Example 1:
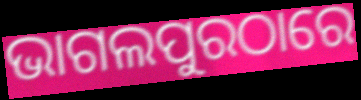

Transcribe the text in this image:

ଭାଗଲପୁରଠାରେ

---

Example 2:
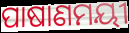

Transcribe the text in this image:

ପାଷାଣମୟୀ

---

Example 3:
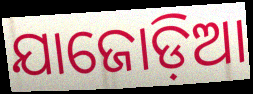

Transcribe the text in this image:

ଯାଜୋଡ଼ିଆ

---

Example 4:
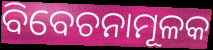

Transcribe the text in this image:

ବିବେଚନାମୂଳକ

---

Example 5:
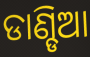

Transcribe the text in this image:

ଡାଣ୍ଡିଆ